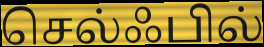
செல்ஃபில்